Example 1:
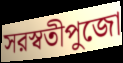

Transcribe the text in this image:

সরস্বতীপুজো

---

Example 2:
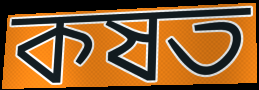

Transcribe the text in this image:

কষত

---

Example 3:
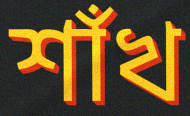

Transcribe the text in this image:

শাঁখ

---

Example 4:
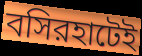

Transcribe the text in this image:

বসিরহাটেই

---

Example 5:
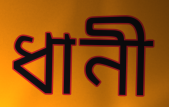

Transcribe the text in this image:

ধানী